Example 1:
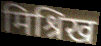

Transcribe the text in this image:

मिश्रिख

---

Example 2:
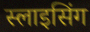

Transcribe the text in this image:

स्लाइसिंग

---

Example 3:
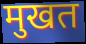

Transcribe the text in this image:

मुखत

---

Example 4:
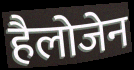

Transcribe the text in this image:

हैलोजेन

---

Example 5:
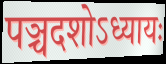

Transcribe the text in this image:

पञ्चदशोऽध्यायः